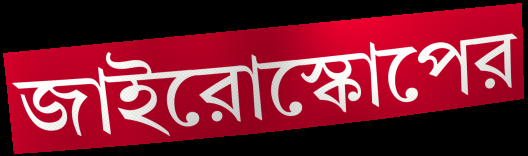
জাইরোস্কোপের